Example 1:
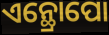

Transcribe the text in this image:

ଏନ୍ଥ୍ରୋପୋ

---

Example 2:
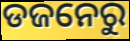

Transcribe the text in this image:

ଡଜନେରୁ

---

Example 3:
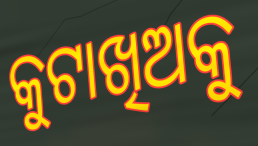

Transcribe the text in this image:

କୁଟାଖିଅକୁ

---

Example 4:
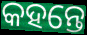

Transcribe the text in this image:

କହନ୍ତେ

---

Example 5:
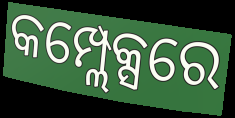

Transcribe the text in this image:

କମ୍ପ୍ଲେକ୍ସରେ